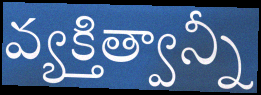
వ్యక్తిత్వాన్నీ